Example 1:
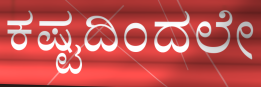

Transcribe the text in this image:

ಕಷ್ಟದಿಂದಲೇ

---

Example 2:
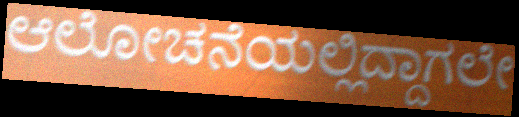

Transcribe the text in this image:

ಆಲೋಚನೆಯಲ್ಲಿದ್ದಾಗಲೇ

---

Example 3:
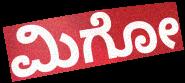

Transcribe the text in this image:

ಮಿಗೋ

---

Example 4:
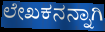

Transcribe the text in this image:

ಲೇಖಕನನ್ನಾಗಿ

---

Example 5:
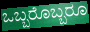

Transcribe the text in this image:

ಒಬ್ಬರೊಬ್ಬರೂ